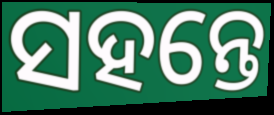
ସହନ୍ତେ